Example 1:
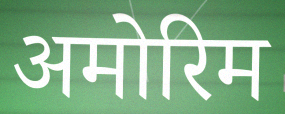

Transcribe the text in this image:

अमोरिम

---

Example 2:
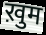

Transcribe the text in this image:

ख़ुम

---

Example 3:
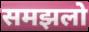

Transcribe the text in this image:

समझलो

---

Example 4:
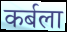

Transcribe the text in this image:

कर्बला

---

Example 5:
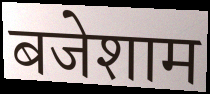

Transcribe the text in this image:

बजेशाम